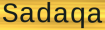
Sadaqa